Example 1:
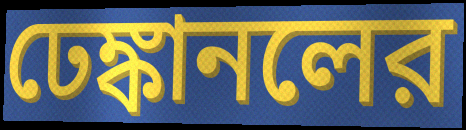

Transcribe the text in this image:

ঢেঙ্কানলের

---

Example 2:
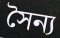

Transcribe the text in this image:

সৈন্য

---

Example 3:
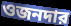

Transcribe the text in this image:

ওজনদার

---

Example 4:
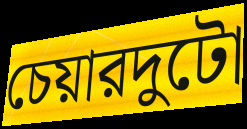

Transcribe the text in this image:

চেয়ারদুটো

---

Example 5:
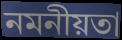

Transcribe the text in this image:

নমনীয়তা